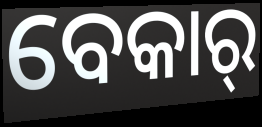
ବେକାର୍